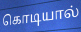
கொடியால்